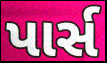
પાર્સ